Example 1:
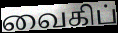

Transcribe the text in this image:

வைகிப்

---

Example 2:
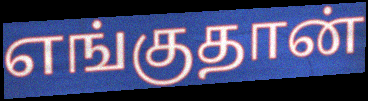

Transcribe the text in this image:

எங்குதான்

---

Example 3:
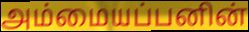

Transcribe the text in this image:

அம்மையப்பனின்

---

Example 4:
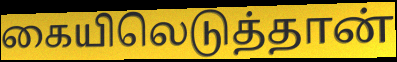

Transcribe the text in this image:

கையிலெடுத்தான்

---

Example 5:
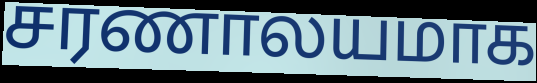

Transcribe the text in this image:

சரணாலயமாக